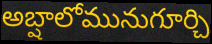
అబ్షాలోమునుగూర్చి